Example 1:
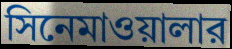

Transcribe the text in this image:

সিনেমাওয়ালার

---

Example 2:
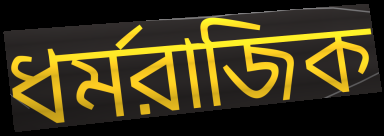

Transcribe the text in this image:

ধর্মরাজিক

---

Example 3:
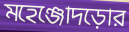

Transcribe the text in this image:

মহেঞ্জোদড়োর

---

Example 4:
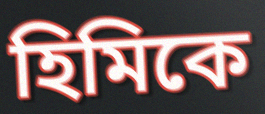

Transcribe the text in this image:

হিমিকে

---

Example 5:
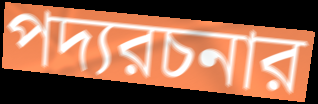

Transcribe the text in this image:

পদ্যরচনার